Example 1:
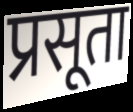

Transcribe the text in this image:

प्रसूता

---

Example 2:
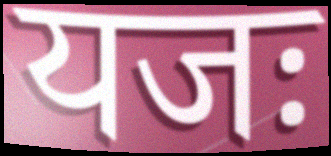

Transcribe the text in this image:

यजः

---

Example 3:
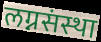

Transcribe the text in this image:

लग्नसंस्था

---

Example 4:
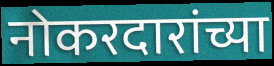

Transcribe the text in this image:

नोकरदारांच्या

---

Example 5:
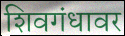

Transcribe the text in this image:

शिवगंधावर